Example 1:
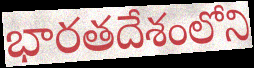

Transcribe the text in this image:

భారతదేశంలోని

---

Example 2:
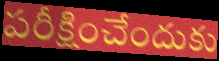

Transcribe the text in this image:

పరీక్షించేందుకు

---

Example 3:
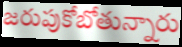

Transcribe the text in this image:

జరుపుకోబోతున్నారు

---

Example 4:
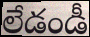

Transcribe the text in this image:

లేడండీ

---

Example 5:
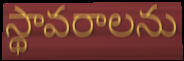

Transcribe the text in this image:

స్థావరాలను